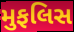
મુફલિસ